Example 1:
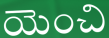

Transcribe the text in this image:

యెంచి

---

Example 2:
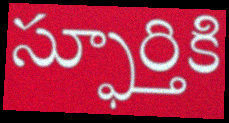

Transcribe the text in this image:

స్ఫూర్తికి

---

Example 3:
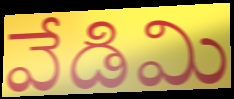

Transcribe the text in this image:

వేడిమి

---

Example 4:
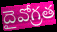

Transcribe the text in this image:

దైవోగ్రత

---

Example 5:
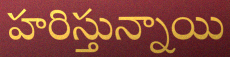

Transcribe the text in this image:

హరిస్తున్నాయి